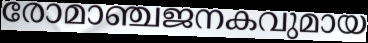
രോമാഞ്ചജനകവുമായ